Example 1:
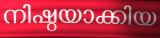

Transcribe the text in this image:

നിഷ്ഠയാക്കിയ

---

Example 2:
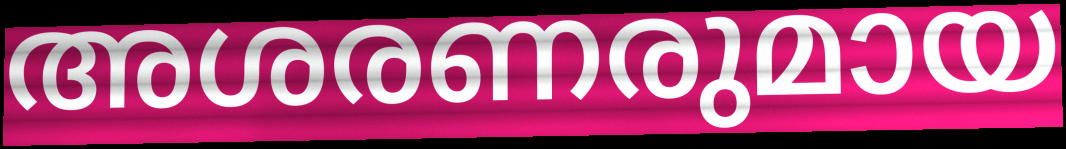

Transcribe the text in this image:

അശരണരുമായ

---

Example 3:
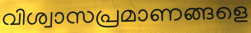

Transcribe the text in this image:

വിശ്വാസപ്രമാണങ്ങളെ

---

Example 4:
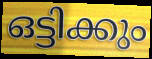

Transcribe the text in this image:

ഒട്ടിക്കും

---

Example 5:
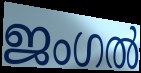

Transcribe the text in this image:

ജംഗൽ